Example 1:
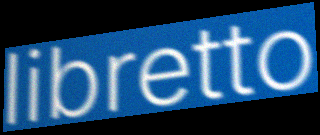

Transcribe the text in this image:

libretto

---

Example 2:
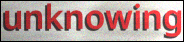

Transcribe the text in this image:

unknowing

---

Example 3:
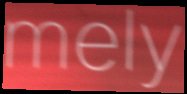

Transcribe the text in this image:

mely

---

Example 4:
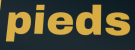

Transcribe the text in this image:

pieds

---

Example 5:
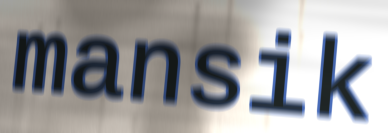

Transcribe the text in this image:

mansik